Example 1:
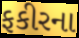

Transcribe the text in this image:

ફકીરના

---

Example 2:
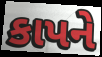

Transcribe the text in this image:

કાપને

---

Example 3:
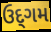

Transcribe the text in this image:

ઉદ્‌ગમ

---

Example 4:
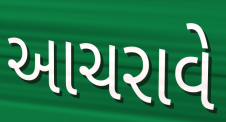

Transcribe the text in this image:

આચરાવે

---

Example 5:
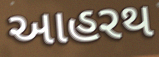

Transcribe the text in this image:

આહરથ